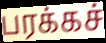
பரக்கச்